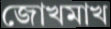
জোখমাখ